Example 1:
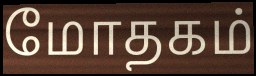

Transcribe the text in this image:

மோதகம்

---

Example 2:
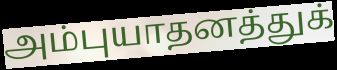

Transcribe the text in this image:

அம்புயாதனத்துக்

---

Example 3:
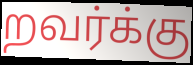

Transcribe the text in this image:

றவர்க்கு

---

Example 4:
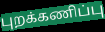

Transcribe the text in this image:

புறக்கணிப்பு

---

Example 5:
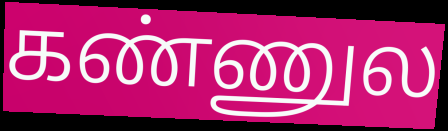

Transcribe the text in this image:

கண்ணுல